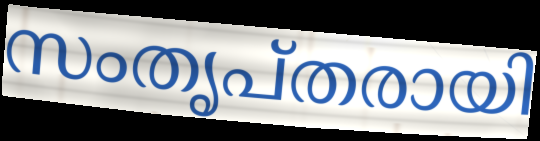
സംതൃപ്തരായി